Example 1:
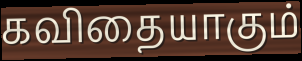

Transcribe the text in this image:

கவிதையாகும்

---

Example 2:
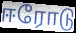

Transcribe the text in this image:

ஈரோடு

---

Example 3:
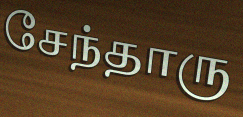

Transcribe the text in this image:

சேந்தாரு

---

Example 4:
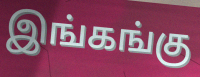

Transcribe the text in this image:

இங்கங்கு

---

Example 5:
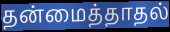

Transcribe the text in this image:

தன்மைத்தாதல்